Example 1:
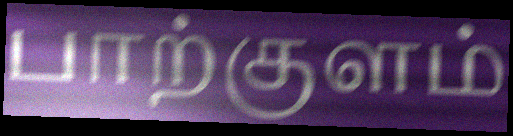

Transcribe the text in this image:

பாற்குளம்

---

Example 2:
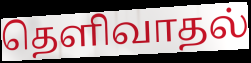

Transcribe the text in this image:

தெளிவாதல்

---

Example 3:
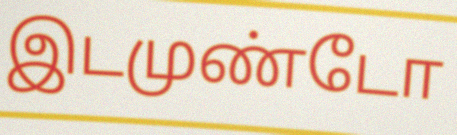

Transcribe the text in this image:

இடமுண்டோ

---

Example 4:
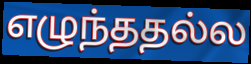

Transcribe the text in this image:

எழுந்ததல்ல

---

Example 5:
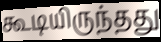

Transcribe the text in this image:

கூடியிருந்தது